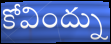
కోవింద్ను